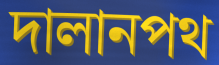
দালানপথ